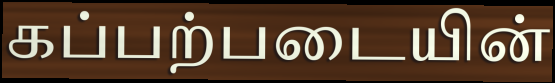
கப்பற்படையின்